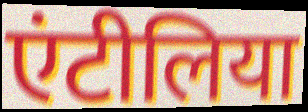
एंटीलिया